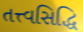
તત્ત્વસિદ્ધિ